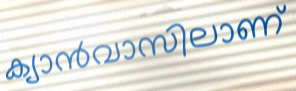
ക്യാൻവാസിലാണ്